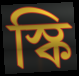
স্কি